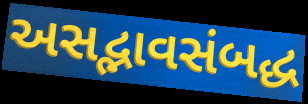
અસદ્ભાવસંબદ્ધ